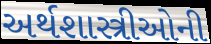
અર્થશાસ્ત્રીઓની